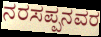
ನರಸಪ್ಪನವರ